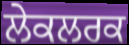
ਲੇਕਲਰਕ